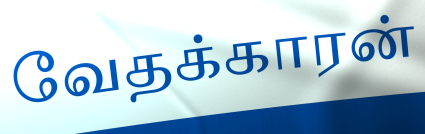
வேதக்காரன்